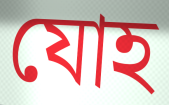
যোহ